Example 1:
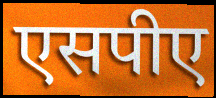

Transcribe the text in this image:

एसपीए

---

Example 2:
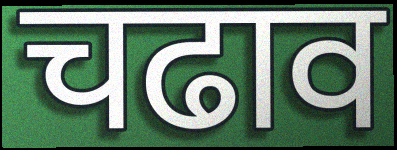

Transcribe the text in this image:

चढाव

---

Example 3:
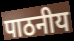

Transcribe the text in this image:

पाठनीय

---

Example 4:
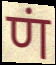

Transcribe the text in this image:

णं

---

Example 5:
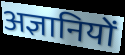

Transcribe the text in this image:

अज्ञानियों